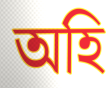
অহি